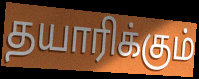
தயாரிக்கும்